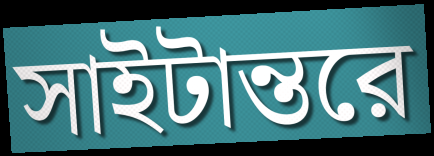
সাইটান্তরে